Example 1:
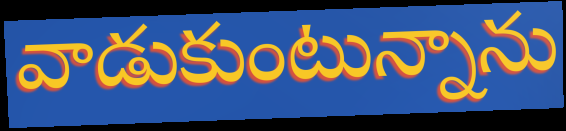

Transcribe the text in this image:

వాడుకుంటున్నాను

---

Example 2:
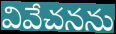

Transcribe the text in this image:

వివేచనను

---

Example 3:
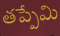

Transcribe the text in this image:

తప్పేమి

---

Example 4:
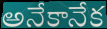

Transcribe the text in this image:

అనేకానేక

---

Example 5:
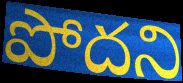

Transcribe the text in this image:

పోదని